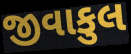
જીવાકુલ